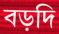
বড়দি